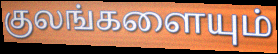
குலங்களையும்